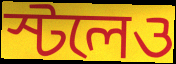
স্টলেও